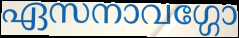
ഏസനാവഗ്ഗോ